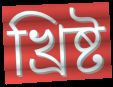
খ্রিষ্ট